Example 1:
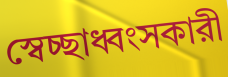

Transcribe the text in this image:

স্বেচ্ছাধ্বংসকারী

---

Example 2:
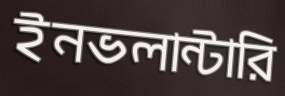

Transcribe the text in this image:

ইনভলান্টারি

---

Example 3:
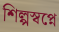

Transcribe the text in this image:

শিল্পস্বপ্নে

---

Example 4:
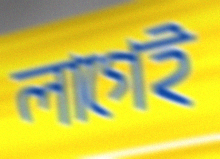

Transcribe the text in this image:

লাগেই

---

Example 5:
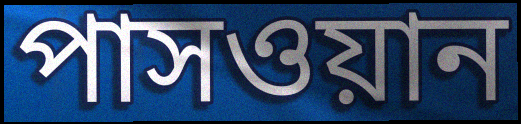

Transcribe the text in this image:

পাসওয়ান